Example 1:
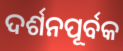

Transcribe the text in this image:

ଦର୍ଶନପୂର୍ବକ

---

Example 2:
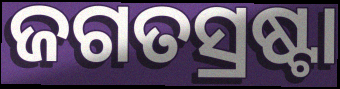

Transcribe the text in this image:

ଜଗତସ୍ରଷ୍ଟା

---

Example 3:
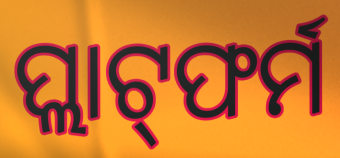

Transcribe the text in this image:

ପ୍ଲାଟ୍‌ଫର୍ମ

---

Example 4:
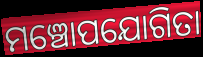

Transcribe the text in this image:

ମଞ୍ଚୋପଯୋଗିତା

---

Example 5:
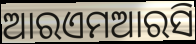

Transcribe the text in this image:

ଆରଏମଆରସି